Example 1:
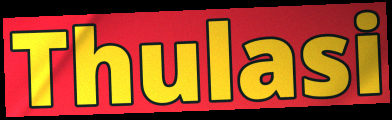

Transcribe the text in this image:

Thulasi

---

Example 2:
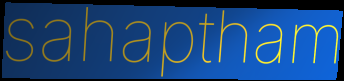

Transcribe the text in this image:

sahaptham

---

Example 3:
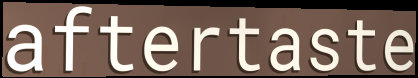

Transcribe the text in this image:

aftertaste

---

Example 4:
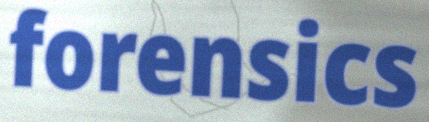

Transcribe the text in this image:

forensics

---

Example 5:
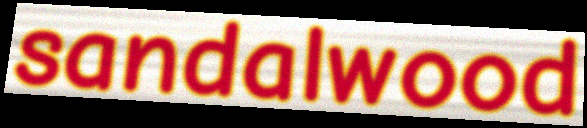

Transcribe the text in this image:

sandalwood